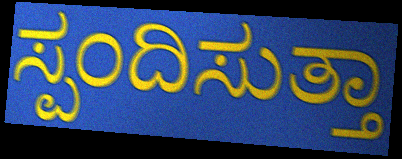
ಸ್ಪಂದಿಸುತ್ತಾ